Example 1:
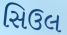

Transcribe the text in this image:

સિઉલ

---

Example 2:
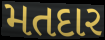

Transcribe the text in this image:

મતદાર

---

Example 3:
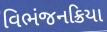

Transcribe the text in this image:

વિભંજનક્રિયા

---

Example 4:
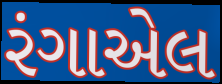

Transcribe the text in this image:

રંગાએલ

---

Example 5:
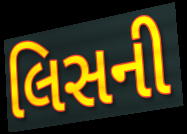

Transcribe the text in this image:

લિસની